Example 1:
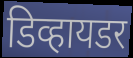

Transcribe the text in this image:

डिव्हायडर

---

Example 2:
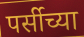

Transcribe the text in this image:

पर्सीच्या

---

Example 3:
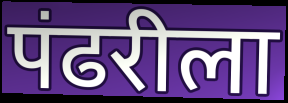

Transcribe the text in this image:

पंढरीला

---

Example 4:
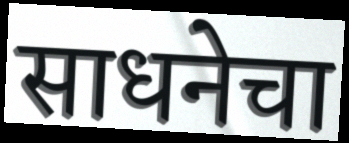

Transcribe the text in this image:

साधनेचा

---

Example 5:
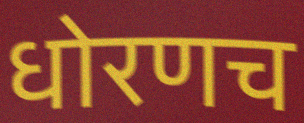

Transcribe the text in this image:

धोरणच